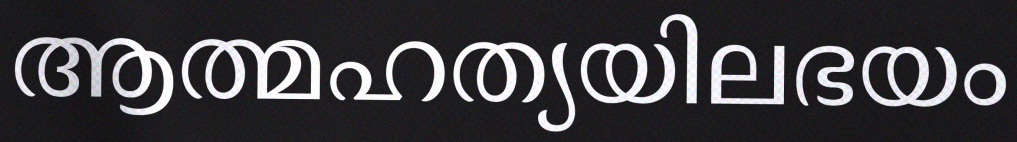
ആത്മഹത്യയിലഭയം